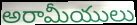
అరామీయులు